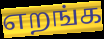
எறங்க